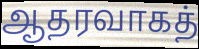
ஆதரவாகத்